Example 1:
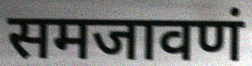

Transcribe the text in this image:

समजावणं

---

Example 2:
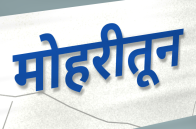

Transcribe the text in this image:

मोहरीतून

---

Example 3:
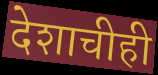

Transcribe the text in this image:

देशाचीही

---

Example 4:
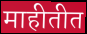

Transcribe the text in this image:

माहीतीत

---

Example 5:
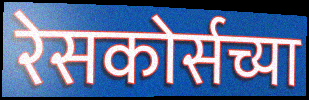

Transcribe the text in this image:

रेसकोर्सच्या